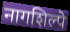
नागशिल्पे